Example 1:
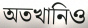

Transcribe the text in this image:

অতখানিও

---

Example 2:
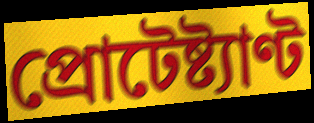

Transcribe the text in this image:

প্রোটেষ্ট্যাণ্ট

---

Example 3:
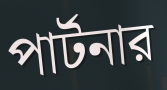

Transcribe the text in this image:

পার্টনার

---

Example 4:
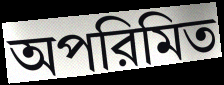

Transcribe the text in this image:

অপরিমিত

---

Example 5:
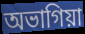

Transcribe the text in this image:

অভাগিয়া